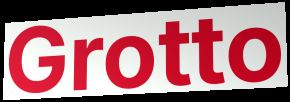
Grotto